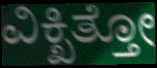
ವಿಕ್ಖಿತ್ತೋ